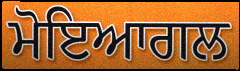
ਮੋਇਆਗਲ